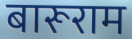
बारूराम